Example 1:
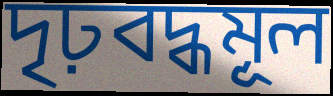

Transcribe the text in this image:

দৃঢ়বদ্ধমূল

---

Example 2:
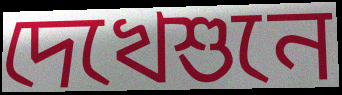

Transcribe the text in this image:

দেখেশুনে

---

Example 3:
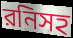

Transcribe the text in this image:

রনিসহ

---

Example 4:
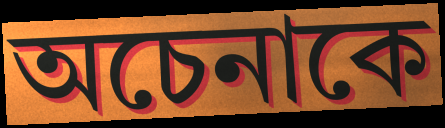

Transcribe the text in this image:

অচেনাকে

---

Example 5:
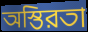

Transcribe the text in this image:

অস্তিরতা